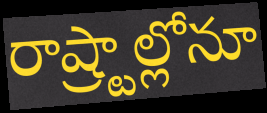
రాష్ర్టాల్లోనూ